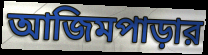
আজিমপাড়ার